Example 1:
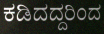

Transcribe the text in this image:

ಕಡಿದದ್ದರಿಂದ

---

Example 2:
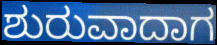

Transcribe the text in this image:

ಶುರುವಾದಾಗ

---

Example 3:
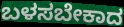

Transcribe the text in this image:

ಬಳಸಬೇಕಾದ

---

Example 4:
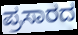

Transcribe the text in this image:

ಪ್ರಸಾರದ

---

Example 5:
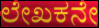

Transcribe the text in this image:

ಲೇಖಕನೇ